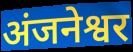
अंजनेश्वर